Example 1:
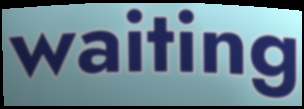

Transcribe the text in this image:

waiting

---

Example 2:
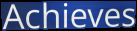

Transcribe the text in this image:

Achieves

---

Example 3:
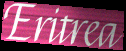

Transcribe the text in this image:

Eritrea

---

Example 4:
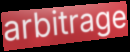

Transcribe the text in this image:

arbitrage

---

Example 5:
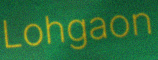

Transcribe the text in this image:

Lohgaon